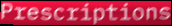
Prescriptions